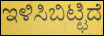
ಇಳಿಸಿಬಿಟ್ಟಿದೆ